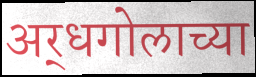
अर्धगोलाच्या